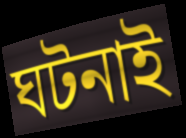
ঘটনাই